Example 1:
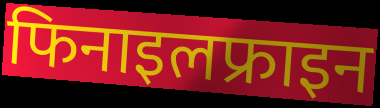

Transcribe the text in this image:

फिनाइलफ्राइन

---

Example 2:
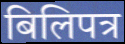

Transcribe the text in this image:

बिलिपत्र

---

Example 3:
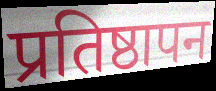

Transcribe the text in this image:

प्रतिष्ठापन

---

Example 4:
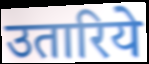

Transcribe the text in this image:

उतारिये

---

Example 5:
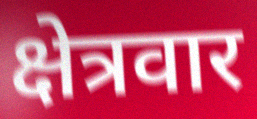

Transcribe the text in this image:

क्षेत्रवार